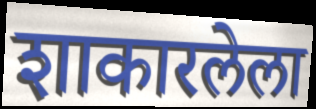
शाकारलेला